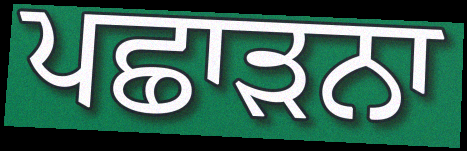
ਪਛਾੜਨਾ